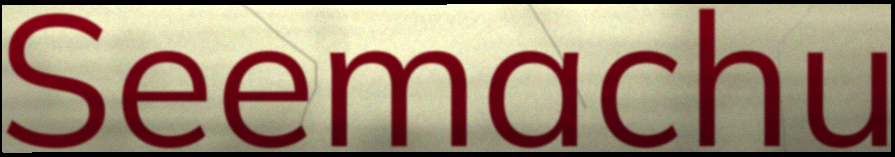
Seemachu